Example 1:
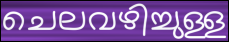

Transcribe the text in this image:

ചെലവഴിച്ചുള്ള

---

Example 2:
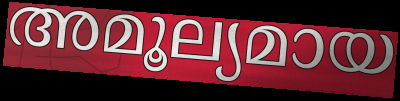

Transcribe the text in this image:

അമൂല്യമായ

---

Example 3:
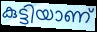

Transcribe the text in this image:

കുട്ടിയാണ്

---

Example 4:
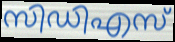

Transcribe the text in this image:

സിഡിഎസ്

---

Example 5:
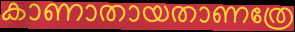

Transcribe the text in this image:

കാണാതായതാണത്രേ